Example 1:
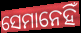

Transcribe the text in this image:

ସେମାନେହିଁ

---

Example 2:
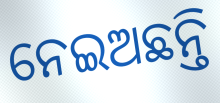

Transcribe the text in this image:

ନେଇଅଛନ୍ତି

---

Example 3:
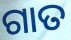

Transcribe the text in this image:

ଗାତ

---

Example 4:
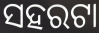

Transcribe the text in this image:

ସହରଟା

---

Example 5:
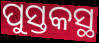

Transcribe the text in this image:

ପୁସ୍ତକସ୍ଥ